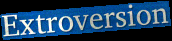
Extroversion